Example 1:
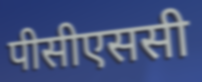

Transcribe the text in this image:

पीसीएससी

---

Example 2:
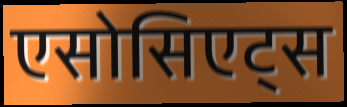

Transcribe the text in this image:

एसोसिएट्स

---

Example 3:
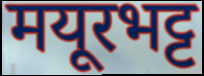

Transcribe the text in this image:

मयूरभट्ट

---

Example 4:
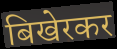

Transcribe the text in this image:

बिखेरकर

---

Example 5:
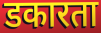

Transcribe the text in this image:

डकारता